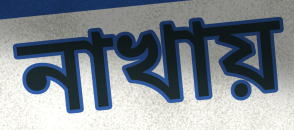
নাখায়